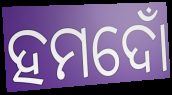
ହମଦୋଁ